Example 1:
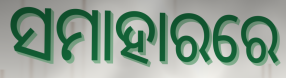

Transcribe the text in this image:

ସମାହାରରେ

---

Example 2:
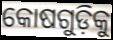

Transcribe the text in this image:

କୋଷଗୁଡ଼ିକୁ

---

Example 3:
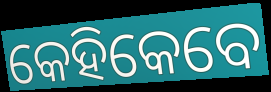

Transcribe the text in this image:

କେହିକେବେ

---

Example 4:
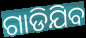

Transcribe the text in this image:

ଗାଡିଯିବ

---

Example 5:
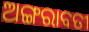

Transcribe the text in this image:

ଅଙ୍ଗରାବତୀ